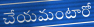
చేయమంటారో